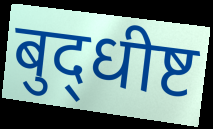
बुद्धीष्ट